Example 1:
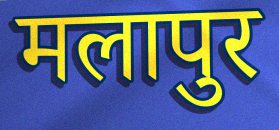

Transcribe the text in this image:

मलापुर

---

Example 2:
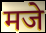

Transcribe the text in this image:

मजे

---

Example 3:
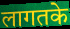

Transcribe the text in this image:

लागतके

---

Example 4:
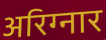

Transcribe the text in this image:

अरिग्नार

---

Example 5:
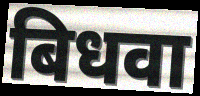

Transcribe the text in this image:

बिधवा